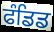
ਫੰਡਿਡ